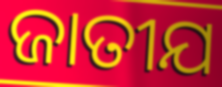
ଜାତୀଯ